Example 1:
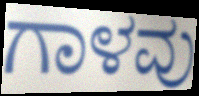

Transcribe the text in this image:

ಗಾಳವು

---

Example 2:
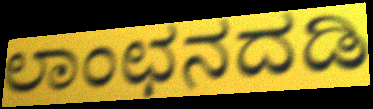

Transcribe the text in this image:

ಲಾಂಛನದಡಿ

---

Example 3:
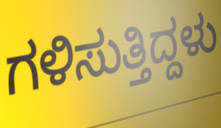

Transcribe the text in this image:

ಗಳಿಸುತ್ತಿದ್ದಳು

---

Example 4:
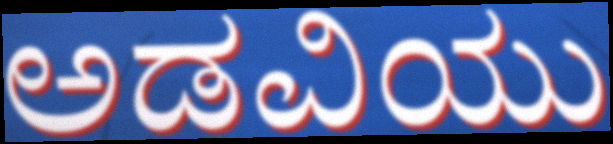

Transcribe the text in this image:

ಅಡವಿಯು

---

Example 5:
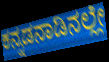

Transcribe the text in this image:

ಕನ್ನಡನಾಡಿನಲ್ಲೇ